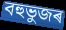
বহুভুজৰ